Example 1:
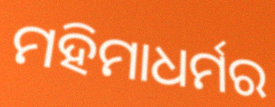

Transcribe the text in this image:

ମହିମାଧର୍ମର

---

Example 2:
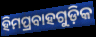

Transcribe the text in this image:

ହିମପ୍ରବାହଗୁଡ଼ିକ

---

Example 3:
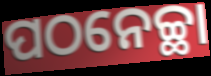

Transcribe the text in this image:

ପଠନେଚ୍ଛା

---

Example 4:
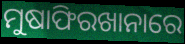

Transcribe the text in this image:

ମୁଷାଫିରଖାନାରେ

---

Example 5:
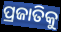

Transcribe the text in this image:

ପ୍ରଜାତିକୁ